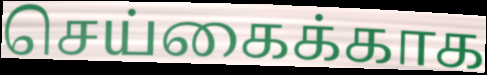
செய்கைக்காக